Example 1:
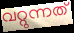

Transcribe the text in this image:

വറ്റുന്നത്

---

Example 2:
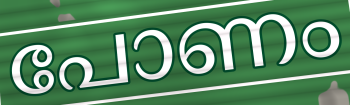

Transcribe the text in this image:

പോണം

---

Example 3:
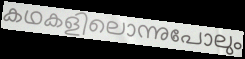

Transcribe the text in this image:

കഥകളിലൊന്നുപോലും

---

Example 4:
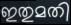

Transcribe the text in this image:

ഇതുമതി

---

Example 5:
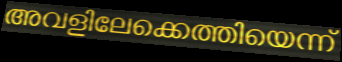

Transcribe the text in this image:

അവളിലേക്കെത്തിയെന്ന്